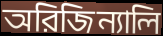
অরিজিন্যালি